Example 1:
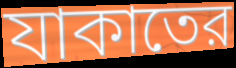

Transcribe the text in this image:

যাকাতের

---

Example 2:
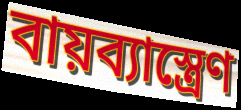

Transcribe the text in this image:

বায়ব্যাস্ত্রেণ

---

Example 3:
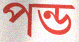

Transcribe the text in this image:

পন্ড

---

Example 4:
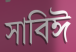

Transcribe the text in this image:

সাবিঈ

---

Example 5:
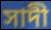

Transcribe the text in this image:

সাদী